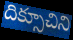
దిక్సూచిని